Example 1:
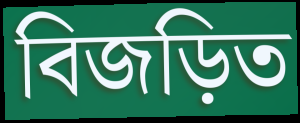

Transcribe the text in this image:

বিজড়িত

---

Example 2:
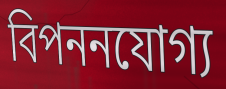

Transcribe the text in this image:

বিপননযোগ্য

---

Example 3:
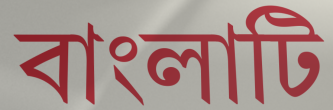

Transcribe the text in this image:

বাংলাটি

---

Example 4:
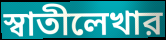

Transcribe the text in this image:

স্বাতীলেখার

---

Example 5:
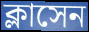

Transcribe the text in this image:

ক্লাসেন